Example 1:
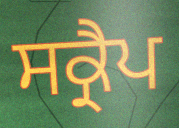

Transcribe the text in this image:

ਸਕ੍ਰੈਪ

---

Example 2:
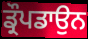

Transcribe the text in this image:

ਡ੍ਰੌਪਡਾਉਨ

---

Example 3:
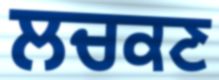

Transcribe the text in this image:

ਲਚਕਣ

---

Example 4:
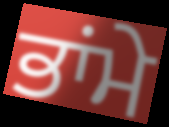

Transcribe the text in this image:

ਭਾਂਮੇ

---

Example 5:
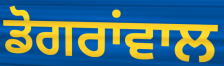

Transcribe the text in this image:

ਡੋਗਰਾਂਵਾਲ